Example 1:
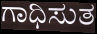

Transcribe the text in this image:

ಗಾಧಿಸುತ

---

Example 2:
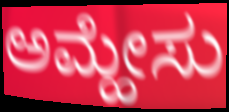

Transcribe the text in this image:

ಅಮ್ಹೇಸು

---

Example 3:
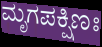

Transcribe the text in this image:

ಮೃಗಪಕ್ಷಿಣಃ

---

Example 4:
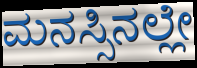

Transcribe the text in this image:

ಮನಸ್ಸಿನಲ್ಲೇ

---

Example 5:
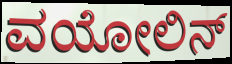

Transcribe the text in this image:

ವಯೋಲಿನ್